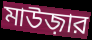
মাউজ়ার